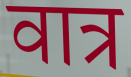
वात्र